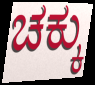
ಚಕ್ಕು